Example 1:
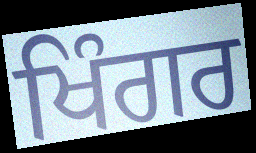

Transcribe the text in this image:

ਖਿੰਗਰ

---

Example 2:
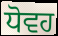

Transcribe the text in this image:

ਧੋਵਹ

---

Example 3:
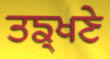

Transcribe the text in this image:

ਤਙ੍ਖਣੇ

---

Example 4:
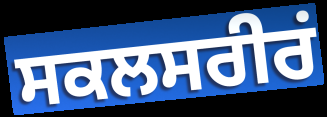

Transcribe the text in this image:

ਸਕਲਸਰੀਰਂ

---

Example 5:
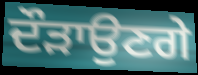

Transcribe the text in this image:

ਦੌੜਾਉਣਗੇ